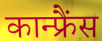
कान्फ्रैंस